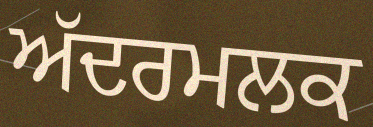
ਅੱਦਰਮਲਕ